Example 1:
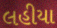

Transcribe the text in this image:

લહીયા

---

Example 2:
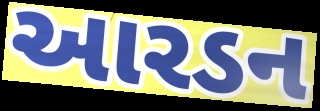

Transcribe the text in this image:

આરડન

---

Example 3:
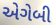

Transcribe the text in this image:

એગેબી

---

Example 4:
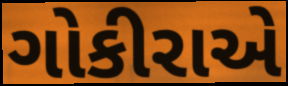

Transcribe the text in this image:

ગોકીરાએ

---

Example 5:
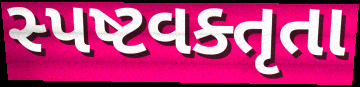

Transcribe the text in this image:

સ્પષ્ટવક્તૃતા